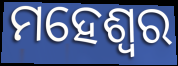
ମହେଶ୍ଵର